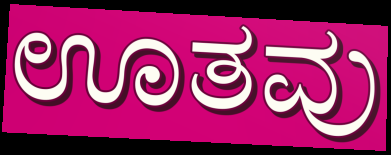
ಊತವು